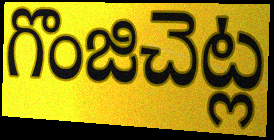
గొంజిచెట్ల